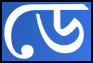
ডে